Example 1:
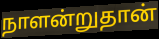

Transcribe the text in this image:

நாளன்றுதான்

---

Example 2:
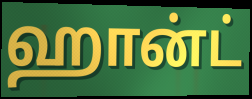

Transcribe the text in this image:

ஹான்ட்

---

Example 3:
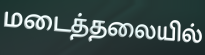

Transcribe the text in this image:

மடைத்தலையில்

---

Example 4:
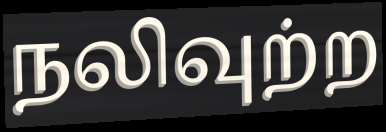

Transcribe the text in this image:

நலிவுற்ற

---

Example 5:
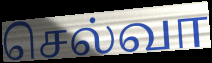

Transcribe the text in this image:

செல்வா